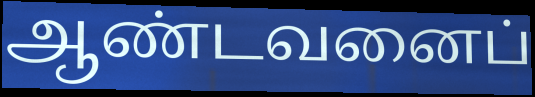
ஆண்டவனைப்